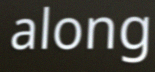
along